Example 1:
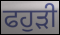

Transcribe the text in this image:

ਫਹੁੜੀ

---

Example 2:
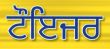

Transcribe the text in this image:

ਟੌਇਜਰ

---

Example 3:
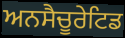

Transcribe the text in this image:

ਅਨਸੈਚੂਰੇਟਿਡ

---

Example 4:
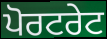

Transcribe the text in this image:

ਪੋਰਟਰੇਟ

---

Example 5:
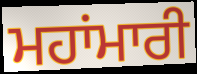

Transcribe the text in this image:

ਮਹਾਂਮਾਰੀ